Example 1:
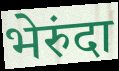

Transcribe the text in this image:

भेरुंदा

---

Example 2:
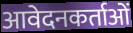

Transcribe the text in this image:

आवेदनकर्ताओं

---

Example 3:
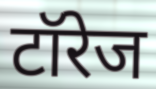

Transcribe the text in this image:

टॉरेज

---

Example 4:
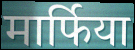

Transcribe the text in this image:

मार्फिया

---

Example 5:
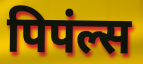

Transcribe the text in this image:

पिपंल्स